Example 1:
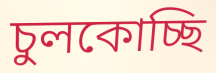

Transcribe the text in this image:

চুলকোচ্ছি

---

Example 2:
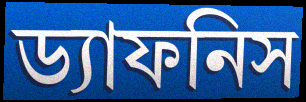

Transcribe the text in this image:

ড্যাফনিস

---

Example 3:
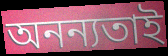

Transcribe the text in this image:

অনন্যতাই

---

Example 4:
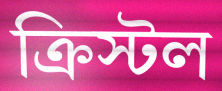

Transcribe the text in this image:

ক্রিস্টল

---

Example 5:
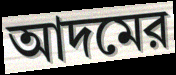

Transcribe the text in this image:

আদমের